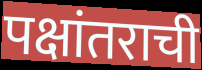
पक्षांतराची